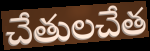
చేతులచేత